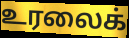
உரலைக்